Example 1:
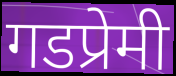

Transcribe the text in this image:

गडप्रेमी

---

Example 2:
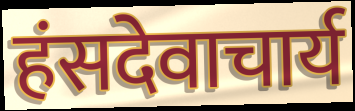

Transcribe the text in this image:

हंसदेवाचार्य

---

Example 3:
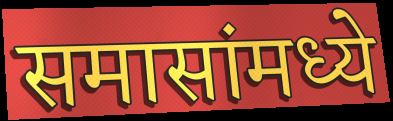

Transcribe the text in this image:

समासांमध्ये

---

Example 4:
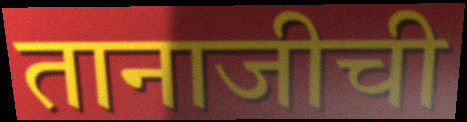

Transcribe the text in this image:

तानाजीची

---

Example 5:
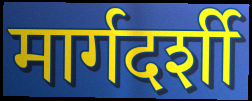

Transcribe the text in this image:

मार्गदर्शी